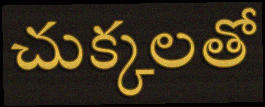
చుక్కలతో